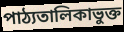
পাঠ্যতালিকাভুক্ত